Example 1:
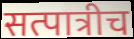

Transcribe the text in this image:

सत्पात्रीच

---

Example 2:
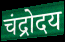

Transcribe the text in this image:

चंद्रोदय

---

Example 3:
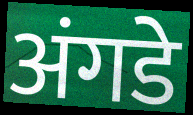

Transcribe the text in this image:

अंगडे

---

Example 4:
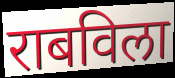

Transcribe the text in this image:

राबविला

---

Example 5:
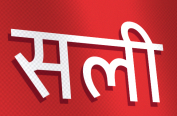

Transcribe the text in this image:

सली